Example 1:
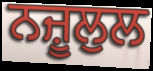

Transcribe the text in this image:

ਨਜ਼ੂਲੁਲ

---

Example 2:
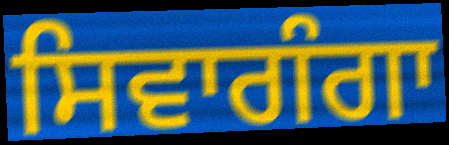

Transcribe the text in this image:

ਸਿਵਾਗੰਗਾ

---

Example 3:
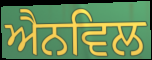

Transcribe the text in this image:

ਐਨਵਿਲ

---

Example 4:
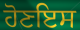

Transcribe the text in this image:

ਹੋਣਇਸ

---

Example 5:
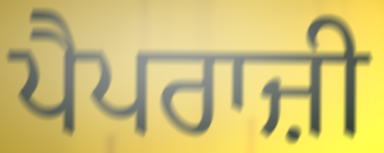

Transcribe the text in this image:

ਪੈਪਰਾਜ਼ੀ